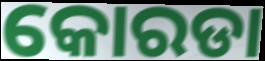
କୋରଡା